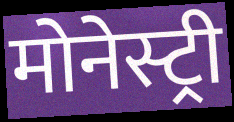
मोनेस्‍ट्री